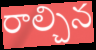
రాల్చిన